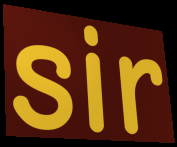
sir